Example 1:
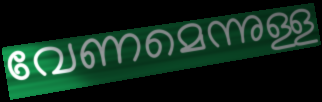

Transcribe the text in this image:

വേണമെന്നുള്ള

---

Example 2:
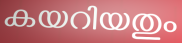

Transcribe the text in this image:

കയറിയതും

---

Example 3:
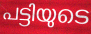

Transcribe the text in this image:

പട്ടിയുടെ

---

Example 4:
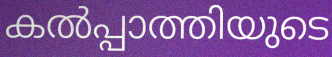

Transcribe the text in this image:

കൽപ്പാത്തിയുടെ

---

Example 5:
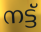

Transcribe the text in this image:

നട്ട്